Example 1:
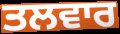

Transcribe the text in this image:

ਤਲਵਾਰ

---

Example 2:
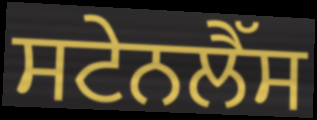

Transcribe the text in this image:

ਸਟੇਨਲੈੱਸ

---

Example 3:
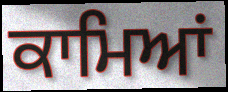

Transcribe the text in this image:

ਕਾਮਿਆਂ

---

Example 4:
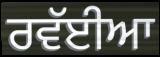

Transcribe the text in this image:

ਰਵੱਈਆ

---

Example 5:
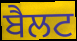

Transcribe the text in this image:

ਬੈਲਟ